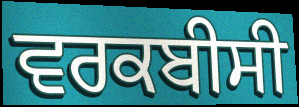
ਵਰਕਬੀਸੀ